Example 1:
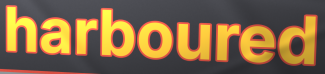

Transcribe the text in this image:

harboured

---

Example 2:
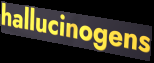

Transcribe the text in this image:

hallucinogens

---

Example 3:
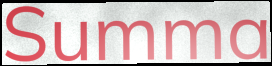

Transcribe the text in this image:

Summa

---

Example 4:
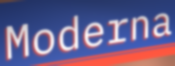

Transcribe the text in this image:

Moderna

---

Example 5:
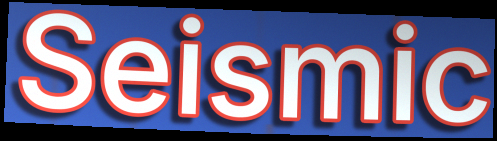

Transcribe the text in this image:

Seismic